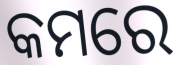
କମରେ